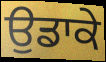
ਉਡਾਕੇ